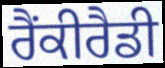
ਰੈਂਕੀਰੈਡੀ